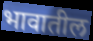
भावातील